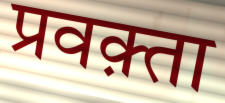
प्रवक़्ता